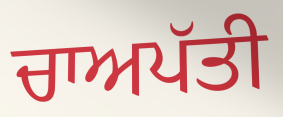
ਚਾਅਪੱਤੀ